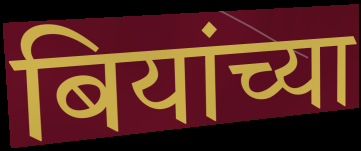
बियांच्या